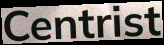
Centrist